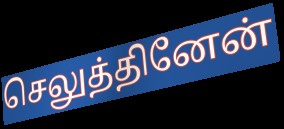
செலுத்தினேன்